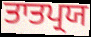
ਤਾਤਪ੍ਰਯ